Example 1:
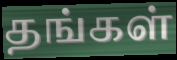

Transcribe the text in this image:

தங்கள்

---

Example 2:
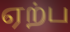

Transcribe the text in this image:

ஏற்ப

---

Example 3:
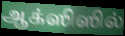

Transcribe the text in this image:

ஆக்ஸிஸில்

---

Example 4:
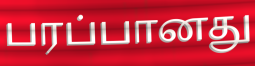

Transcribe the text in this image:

பரப்பானது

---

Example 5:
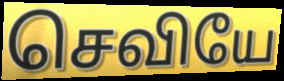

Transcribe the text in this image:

செவியே